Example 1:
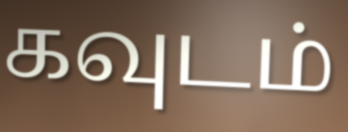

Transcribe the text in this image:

கவுடம்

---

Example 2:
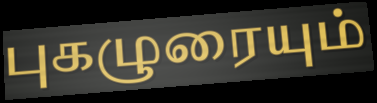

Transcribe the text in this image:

புகழுரையும்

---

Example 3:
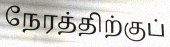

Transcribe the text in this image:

நேரத்திற்குப்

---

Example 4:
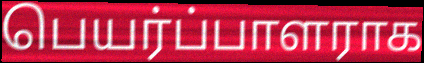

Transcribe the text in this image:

பெயர்ப்பாளராக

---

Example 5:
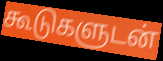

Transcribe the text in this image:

கூடுகளுடன்